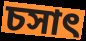
চসাৎ